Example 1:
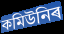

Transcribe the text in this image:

কমিউনিৰ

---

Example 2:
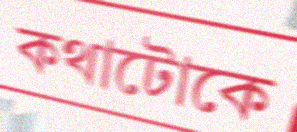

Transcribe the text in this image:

কথাটোকে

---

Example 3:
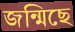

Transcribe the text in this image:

জন্মিছে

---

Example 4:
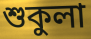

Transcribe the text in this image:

শুকুলা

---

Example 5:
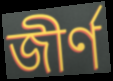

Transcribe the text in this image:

জীৰ্ণ